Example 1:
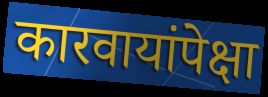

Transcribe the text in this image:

कारवायांपेक्षा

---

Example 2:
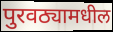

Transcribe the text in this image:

पुरवठ्यामधील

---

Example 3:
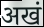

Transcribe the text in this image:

अखं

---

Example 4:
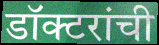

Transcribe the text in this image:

डॉक्टरांची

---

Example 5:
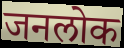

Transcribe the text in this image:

जनलोक